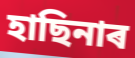
হাছিনাৰ